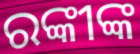
ରଙ୍କୀଙ୍କ